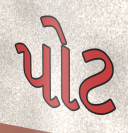
પોટ